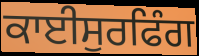
ਕਾਈਸੁਰਫਿੰਗ